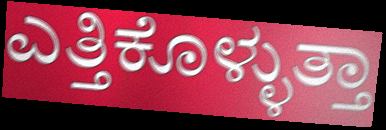
ಎತ್ತಿಕೊಳ್ಳುತ್ತಾ